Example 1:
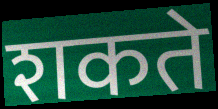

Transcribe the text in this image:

शकते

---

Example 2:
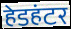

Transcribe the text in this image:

हेडहंटर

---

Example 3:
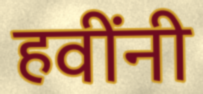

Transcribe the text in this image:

हवींनी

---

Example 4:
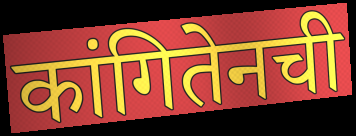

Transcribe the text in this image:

कांगितेनची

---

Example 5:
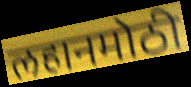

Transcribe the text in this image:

लहानमोठी